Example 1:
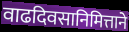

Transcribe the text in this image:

वाढदिवसानिमित्ताने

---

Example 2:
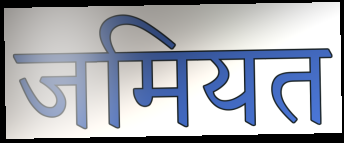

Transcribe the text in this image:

जमियत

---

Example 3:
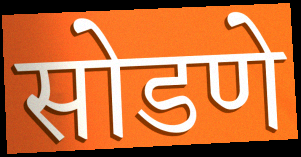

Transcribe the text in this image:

सोडणे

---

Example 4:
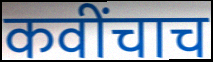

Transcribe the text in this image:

कवींचाच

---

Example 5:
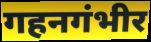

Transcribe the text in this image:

गहनगंभीर